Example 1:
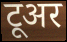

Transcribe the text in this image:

टूअर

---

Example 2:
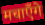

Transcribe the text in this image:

मचाएँगे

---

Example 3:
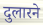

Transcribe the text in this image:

दुलारने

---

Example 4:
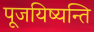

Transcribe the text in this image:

पूजयिष्यन्ति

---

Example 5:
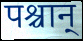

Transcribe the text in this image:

पश्चान्